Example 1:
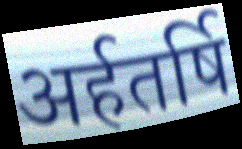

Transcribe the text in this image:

अर्हतर्षि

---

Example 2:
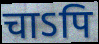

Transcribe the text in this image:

चाऽपि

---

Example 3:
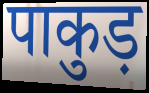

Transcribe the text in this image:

पाकुड़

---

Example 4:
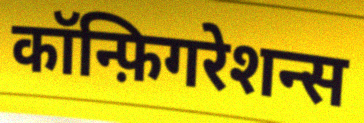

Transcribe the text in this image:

कॉन्फ़िगरेशन्स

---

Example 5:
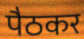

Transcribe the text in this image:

पैठकर